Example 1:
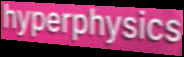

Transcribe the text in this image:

hyperphysics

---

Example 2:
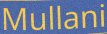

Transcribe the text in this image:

Mullani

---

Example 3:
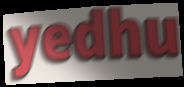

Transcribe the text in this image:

yedhu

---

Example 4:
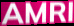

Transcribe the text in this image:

AMRI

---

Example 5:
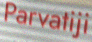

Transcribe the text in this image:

Parvatiji